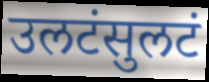
उलटंसुलटं